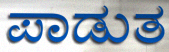
ಪಾಡುತ